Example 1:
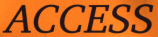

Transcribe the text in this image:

ACCESS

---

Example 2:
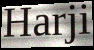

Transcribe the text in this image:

Harji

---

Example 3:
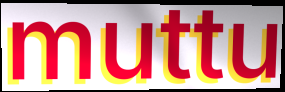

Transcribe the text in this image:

muttu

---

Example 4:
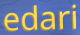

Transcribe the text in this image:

edari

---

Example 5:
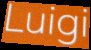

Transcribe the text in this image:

Luigi